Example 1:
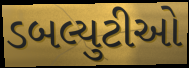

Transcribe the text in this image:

ડબલ્યુટીઓ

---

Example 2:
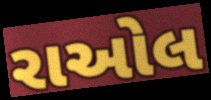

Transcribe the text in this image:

રાઓલ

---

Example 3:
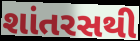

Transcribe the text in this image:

શાંતરસથી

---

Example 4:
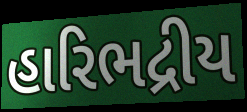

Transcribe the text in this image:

હારિભદ્રીય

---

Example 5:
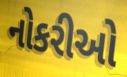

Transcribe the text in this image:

નોકરીઓ